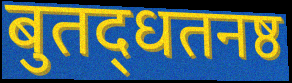
बुतद्धतनष्ठ